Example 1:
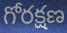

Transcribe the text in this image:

గోరక్షణ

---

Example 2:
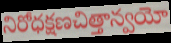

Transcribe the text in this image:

నిరోధక్షణచిత్తాన్వయో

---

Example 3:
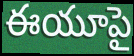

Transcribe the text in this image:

ఈయూపై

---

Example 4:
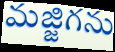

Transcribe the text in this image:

మజ్జిగను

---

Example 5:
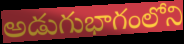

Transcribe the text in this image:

అడుగుభాగంలోని